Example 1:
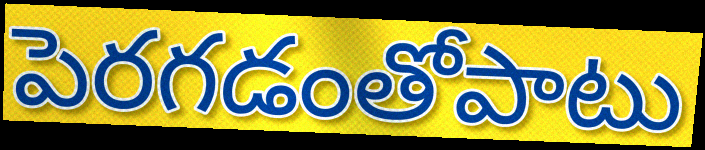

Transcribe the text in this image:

పెరగడంతోపాటు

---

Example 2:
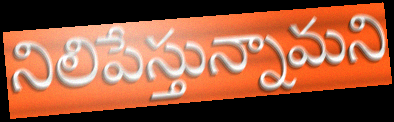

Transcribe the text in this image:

నిలిపేస్తున్నామని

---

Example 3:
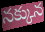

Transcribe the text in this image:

నక్కున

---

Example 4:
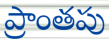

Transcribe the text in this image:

ప్రాంతపు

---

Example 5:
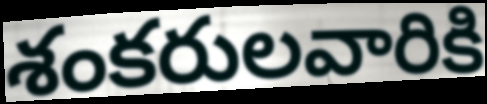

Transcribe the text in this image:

శంకరులవారికి